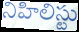
నిహిలిస్టు